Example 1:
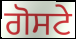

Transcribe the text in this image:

ਗੋਸਟੇ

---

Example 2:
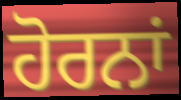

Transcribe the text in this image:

ਹੋਰਨਾਂ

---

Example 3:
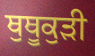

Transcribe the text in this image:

ਥੁਥੂਕੁੜੀ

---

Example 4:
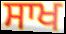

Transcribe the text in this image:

ਸਾਖ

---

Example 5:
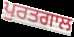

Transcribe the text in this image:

ਪੁਰਤਗਾਲ